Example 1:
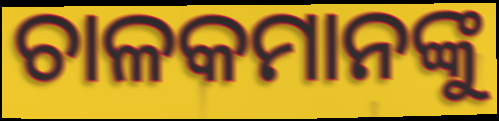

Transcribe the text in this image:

ଚାଳକମାନଙ୍କୁ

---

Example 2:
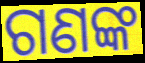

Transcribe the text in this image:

ଗଣଙ୍କ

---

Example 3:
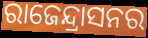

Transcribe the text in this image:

ରାଜେନ୍ଦ୍ରାସନର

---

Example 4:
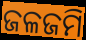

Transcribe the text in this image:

ଜଳଜମି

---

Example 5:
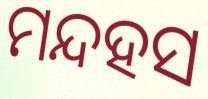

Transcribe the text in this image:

ମନ୍ଦହସ